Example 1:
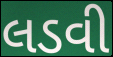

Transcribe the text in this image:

લડવી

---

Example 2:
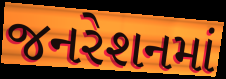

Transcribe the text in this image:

જનરેશનમાં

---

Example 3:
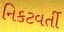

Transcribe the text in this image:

નિકટવર્તી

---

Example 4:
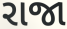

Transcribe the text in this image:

રાજા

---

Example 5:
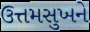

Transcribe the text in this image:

ઉત્તમસુખને